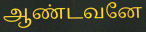
ஆண்டவனே